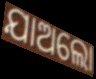
ଯାଅଲୋ